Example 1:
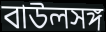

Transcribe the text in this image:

বাউলসঙ্গ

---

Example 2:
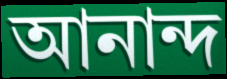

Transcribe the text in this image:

আনান্দ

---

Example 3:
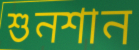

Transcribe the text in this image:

শুনশান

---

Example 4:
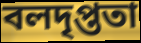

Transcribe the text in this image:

বলদৃপ্ততা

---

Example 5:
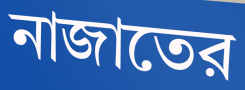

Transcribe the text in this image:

নাজাতের